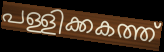
പള്ളിക്കകത്ത്